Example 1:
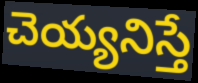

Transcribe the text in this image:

చెయ్యనిస్తే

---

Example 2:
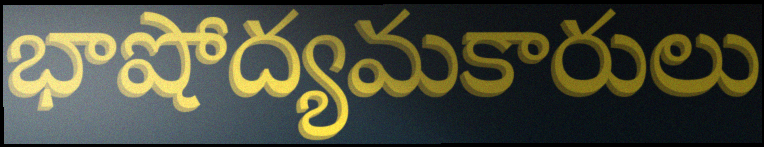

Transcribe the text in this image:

భాషోద్యమకారులు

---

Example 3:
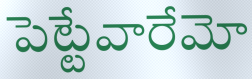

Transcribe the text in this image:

పెట్టేవారేమో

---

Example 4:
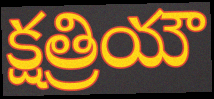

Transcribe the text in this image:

క్షత్రియౌ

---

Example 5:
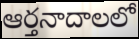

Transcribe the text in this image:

ఆర్తనాదాలలో